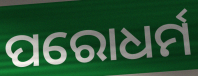
ପରୋଧର୍ମ